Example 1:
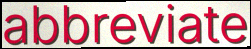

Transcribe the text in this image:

abbreviate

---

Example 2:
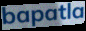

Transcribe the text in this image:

bapatla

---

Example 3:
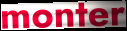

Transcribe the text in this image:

monter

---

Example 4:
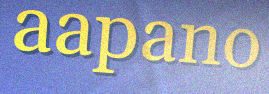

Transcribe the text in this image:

aapano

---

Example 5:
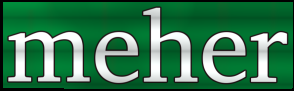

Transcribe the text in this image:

meher